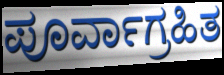
ಪೂರ್ವಾಗ್ರಹಿತ